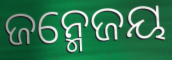
ଜନ୍ମେଜୟ